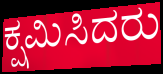
ಕ್ಷಮಿಸಿದರು